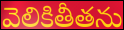
వెలికితీతను